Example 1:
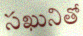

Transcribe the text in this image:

సఖునితో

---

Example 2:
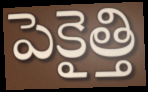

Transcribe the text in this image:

పెకైత్తి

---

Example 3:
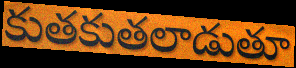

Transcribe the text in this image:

కుతకుతలాడుతూ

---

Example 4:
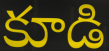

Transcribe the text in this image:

కూడి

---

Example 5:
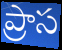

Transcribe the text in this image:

ప్రాస